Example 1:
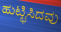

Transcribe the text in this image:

ಹುಟ್ಟಿಸಿದವು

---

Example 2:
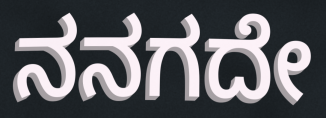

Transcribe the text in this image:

ನನಗದೇ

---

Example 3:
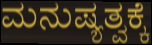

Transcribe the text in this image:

ಮನುಷ್ಯತ್ವಕ್ಕೆ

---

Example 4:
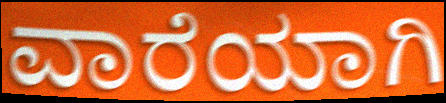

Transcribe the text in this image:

ವಾರೆಯಾಗಿ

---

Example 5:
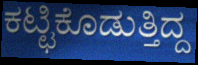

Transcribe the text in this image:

ಕಟ್ಟಿಕೊಡುತ್ತಿದ್ದ